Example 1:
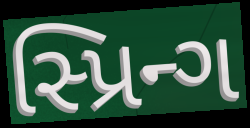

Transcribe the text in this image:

સ્પ્રિન્ગ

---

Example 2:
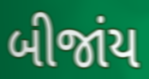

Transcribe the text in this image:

બીજાંય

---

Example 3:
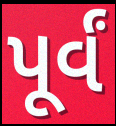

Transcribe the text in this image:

પૂર્વં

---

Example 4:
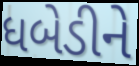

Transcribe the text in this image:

ધબેડીને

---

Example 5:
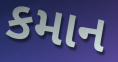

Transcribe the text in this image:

કમાન